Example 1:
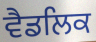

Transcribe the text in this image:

ਵੈਡਲਿਕ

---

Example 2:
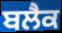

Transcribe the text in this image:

ਬਲੈਕ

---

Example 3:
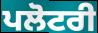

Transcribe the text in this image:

ਪਲੋਟਰੀ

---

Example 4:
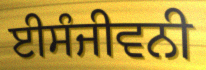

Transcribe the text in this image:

ਈਸੰਜੀਵਨੀ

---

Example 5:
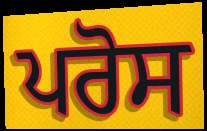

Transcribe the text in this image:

ਪਰੋਸ